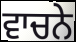
ਵਾਚਨੇ